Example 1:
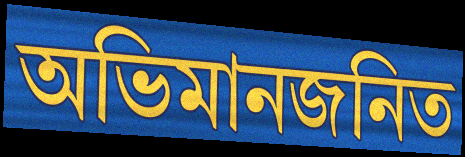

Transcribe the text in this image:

অভিমানজনিত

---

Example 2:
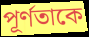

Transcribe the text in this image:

পূর্ণতাকে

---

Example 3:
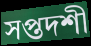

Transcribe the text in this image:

সপ্তদশী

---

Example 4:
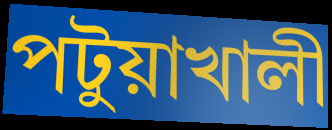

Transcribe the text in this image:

পটুয়াখালী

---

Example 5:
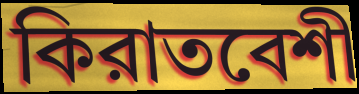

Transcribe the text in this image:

কিরাতবেশী